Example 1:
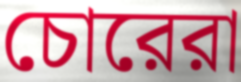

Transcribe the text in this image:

চোরেরা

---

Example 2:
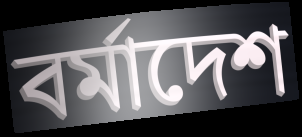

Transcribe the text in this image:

বর্মাদেশ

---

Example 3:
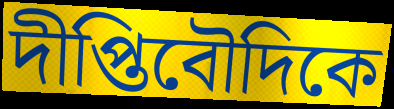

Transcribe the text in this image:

দীপ্তিবৌদিকে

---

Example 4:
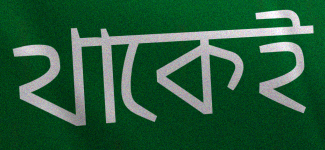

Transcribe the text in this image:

থাকেই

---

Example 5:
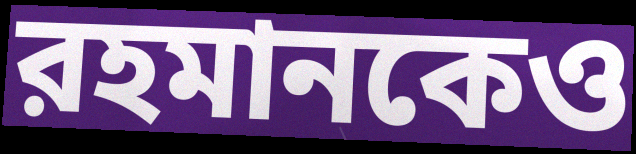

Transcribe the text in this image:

রহমানকেও